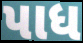
પાધ